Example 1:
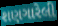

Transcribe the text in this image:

શણગારેલી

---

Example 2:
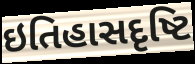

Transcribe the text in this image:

ઇતિહાસદૃષ્ટિ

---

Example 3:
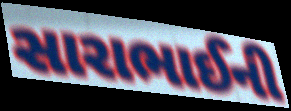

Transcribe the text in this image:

સારાભાઈની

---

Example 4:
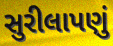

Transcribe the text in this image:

સુરીલાપણું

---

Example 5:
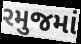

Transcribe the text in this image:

રમુજમાં